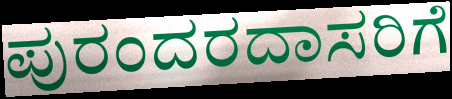
ಪುರಂದರದಾಸರಿಗೆ